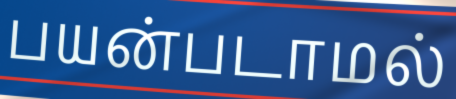
பயன்படாமல்